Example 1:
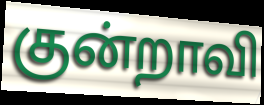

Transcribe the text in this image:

குன்றாவி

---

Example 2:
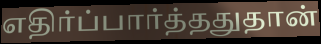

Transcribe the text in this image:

எதிர்ப்பார்த்ததுதான்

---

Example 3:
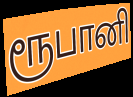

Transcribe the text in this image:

ரூபானி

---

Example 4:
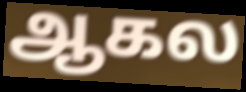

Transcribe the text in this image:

ஆகல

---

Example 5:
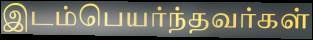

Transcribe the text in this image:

இடம்பெயர்ந்தவர்கள்